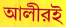
আলীরই